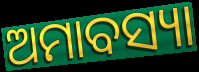
ଅମାବସ୍ୟା